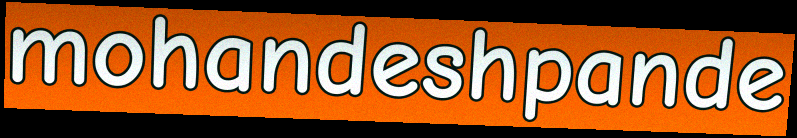
mohandeshpande